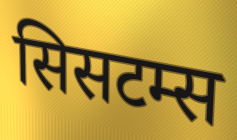
सिसटम्स